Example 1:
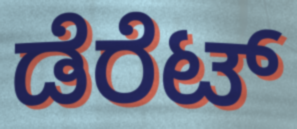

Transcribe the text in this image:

ಡೆರೆಟ್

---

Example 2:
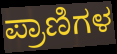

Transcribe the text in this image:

ಪ್ರಾಣಿಗಳ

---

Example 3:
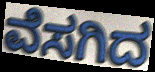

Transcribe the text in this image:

ವೆಸಗಿದ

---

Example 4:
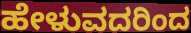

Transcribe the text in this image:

ಹೇಳುವದರಿಂದ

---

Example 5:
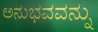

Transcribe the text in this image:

ಅನುಭವವನ್ನು